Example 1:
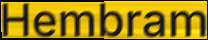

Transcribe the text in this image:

Hembram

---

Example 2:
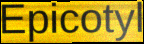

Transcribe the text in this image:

Epicotyl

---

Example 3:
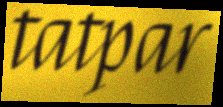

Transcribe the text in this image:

tatpar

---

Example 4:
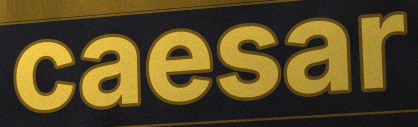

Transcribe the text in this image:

caesar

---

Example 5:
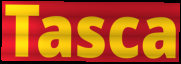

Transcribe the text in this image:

Tasca